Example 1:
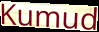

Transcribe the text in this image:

Kumud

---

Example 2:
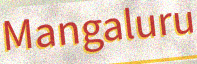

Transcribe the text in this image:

Mangaluru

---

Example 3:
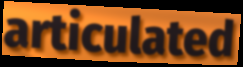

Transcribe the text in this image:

articulated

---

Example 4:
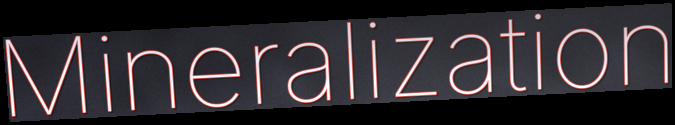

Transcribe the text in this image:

Mineralization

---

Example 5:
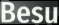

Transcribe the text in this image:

Besu